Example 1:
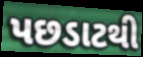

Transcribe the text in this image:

પછડાટથી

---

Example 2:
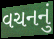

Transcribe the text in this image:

વચનનું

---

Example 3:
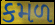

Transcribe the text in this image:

કમળ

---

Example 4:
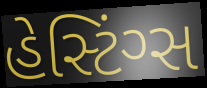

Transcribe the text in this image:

હેસ્ટિંગ્સ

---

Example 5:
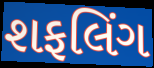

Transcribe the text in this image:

શફલિંગ